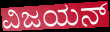
ವಿಜಯನ್